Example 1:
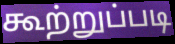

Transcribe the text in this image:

கூற்றுப்படி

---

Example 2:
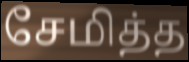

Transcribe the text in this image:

சேமித்த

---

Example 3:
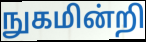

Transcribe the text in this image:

நுகமின்றி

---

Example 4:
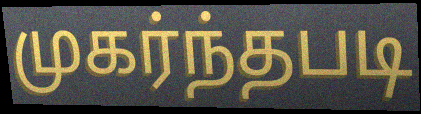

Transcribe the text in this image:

முகர்ந்தபடி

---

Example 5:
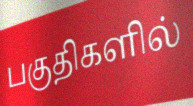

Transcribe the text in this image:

பகுதிகளில்